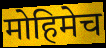
मोहिमेच